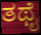
ತಥೈ